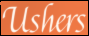
Ushers